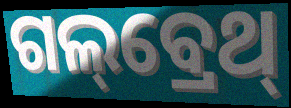
ଗଲ୍‌ବ୍ରେଥ୍